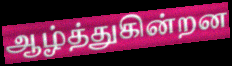
ஆழ்த்துகின்றன